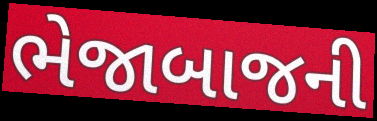
ભેજાબાજની